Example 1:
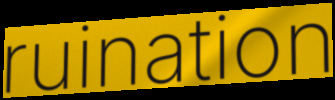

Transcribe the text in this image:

ruination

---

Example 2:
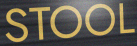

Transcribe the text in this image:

STOOL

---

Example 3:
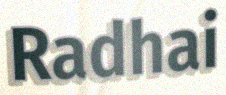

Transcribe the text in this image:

Radhai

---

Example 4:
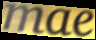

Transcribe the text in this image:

mae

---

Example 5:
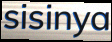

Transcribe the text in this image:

sisinya